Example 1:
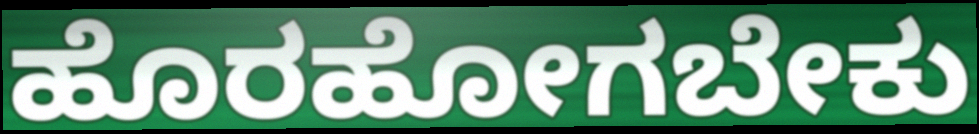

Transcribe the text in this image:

ಹೊರಹೋಗಬೇಕು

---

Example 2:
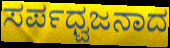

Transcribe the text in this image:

ಸರ್ಪಧ್ವಜನಾದ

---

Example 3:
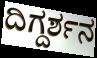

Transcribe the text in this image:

ದಿಗ್ದರ್ಶನ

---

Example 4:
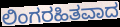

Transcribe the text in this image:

ಲಿಂಗರಹಿತವಾದ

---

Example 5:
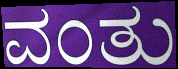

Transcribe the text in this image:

ವಂತು